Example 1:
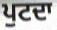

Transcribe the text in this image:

ਪੁਟਦਾ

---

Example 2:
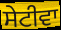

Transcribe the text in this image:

ਸੇਟੀਵਾ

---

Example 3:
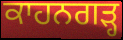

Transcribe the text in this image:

ਕਾਹਨਗੜ੍ਹ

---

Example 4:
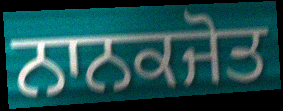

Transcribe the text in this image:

ਨਾਨਕਜੋਤ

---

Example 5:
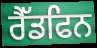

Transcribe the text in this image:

ਰੈੱਡਫਿਨ